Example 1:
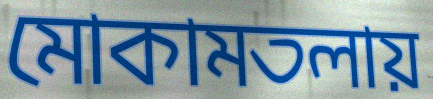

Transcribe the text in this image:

মোকামতলায়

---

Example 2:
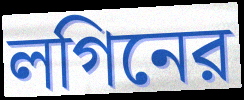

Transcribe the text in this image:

লগিনের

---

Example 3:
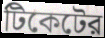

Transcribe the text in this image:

টিকেটের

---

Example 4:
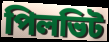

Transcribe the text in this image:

পিলভিট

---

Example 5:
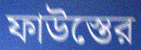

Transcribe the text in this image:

ফাউস্তের